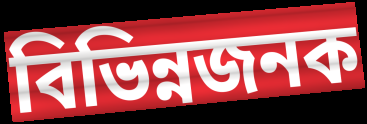
বিভিন্নজনক